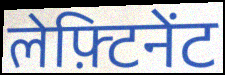
लेफ़्टिनेंट